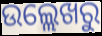
ଉଲ୍ଲେଖରୁ